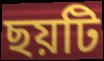
ছয়টি